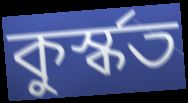
কুৰ্স্কত